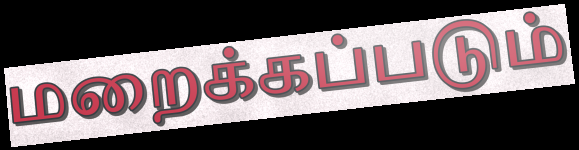
மறைக்கப்படும்